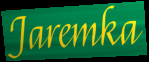
Jaremka